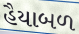
હૈયાબળ